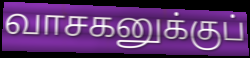
வாசகனுக்குப்